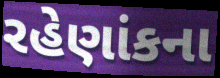
રહેણાંકના